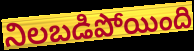
నిలబడిపోయింది